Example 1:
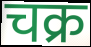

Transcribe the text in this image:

चक्र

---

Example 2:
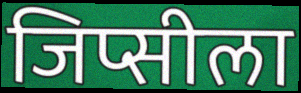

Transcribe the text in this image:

जिप्सीला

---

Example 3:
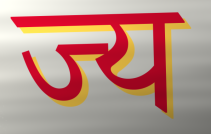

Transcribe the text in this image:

ज्य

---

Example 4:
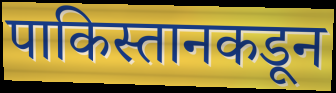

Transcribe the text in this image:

पाकिस्तानकडून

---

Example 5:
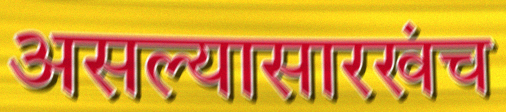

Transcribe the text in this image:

असल्यासारखंच